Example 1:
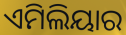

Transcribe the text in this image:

ଏମିଲିୟାର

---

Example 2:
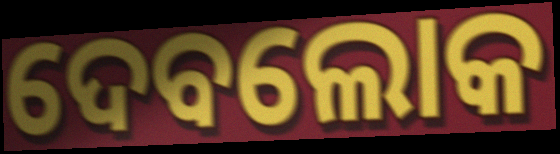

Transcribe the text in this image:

ଦେବଲୋକ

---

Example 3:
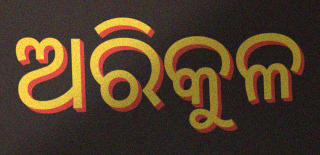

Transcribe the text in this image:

ଅରିକୁଳ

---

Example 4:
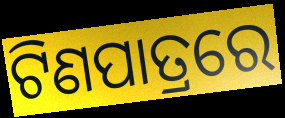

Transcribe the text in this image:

ଟିଣପାତ୍ରରେ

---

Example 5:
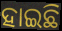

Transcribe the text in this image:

ହାଇଛି